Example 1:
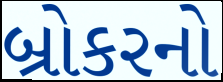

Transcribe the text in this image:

બ્રોકરનો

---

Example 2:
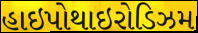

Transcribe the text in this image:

હાઇપોથાઇરોડિઝમ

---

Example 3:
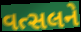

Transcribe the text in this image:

વત્સલને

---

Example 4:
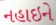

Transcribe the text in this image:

નહાઇને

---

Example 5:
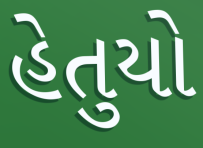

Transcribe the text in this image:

હેતુયો